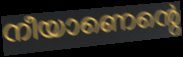
നീയാണെന്റെ